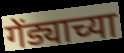
गेंड्याच्या